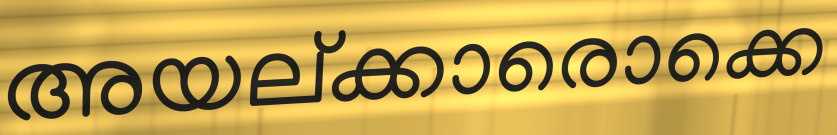
അയല്ക്കാരൊക്കെ